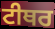
ਟੀਥਰ